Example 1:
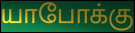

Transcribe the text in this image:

யாபோக்கு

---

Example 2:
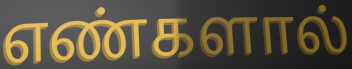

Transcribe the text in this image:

எண்களால்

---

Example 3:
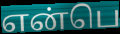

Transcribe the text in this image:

என்பெ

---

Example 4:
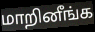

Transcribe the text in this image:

மாறினீங்க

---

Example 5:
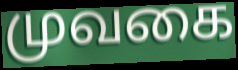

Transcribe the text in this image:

முவகை